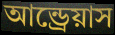
আন্ড্রেয়াস